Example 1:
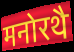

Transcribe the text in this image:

मनोरथै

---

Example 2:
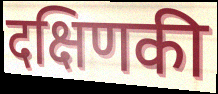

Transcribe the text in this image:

दक्षिणकी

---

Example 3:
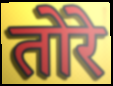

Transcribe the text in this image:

तोरे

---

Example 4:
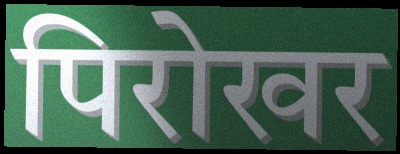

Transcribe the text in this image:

पिरोखर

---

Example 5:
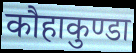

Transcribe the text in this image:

कौहाकुण्डा